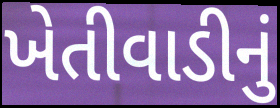
ખેતીવાડીનું